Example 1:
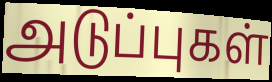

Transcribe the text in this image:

அடுப்புகள்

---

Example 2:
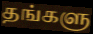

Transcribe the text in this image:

தங்களு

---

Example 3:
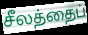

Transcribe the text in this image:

சீலத்தைப்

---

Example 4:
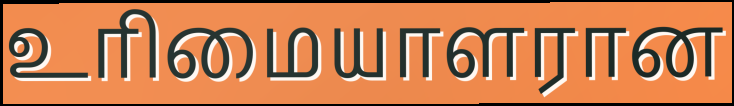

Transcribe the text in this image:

உரிமையாளரான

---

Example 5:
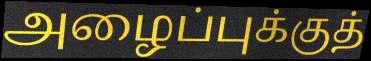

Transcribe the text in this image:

அழைப்புக்குத்